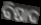
ବିଷାଦ